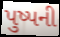
પુષ્પની